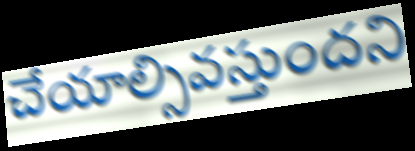
చేయాల్సివస్తుందని